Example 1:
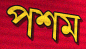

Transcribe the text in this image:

পশম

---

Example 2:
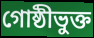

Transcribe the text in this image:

গোষ্ঠীভুক্ত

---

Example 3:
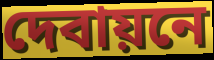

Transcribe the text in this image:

দেবায়নে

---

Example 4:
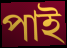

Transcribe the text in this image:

পাই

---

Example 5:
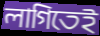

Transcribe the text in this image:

লাগিতেই